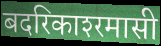
बदरिकाश्रमासी